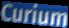
Curium